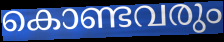
കൊണ്ടവരും